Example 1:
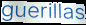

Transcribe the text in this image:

guerillas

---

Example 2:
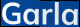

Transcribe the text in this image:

Garla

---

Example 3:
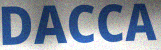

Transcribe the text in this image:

DACCA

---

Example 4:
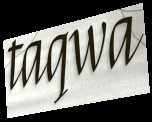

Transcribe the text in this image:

taqwa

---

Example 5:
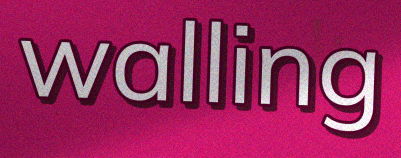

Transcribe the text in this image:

walling